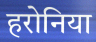
हरोनिया